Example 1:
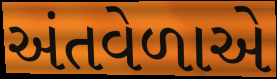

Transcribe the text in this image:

અંતવેળાએ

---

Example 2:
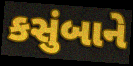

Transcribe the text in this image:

કસુંબાને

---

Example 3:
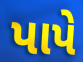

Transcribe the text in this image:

પાપે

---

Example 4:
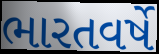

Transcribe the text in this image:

ભારતવર્ષે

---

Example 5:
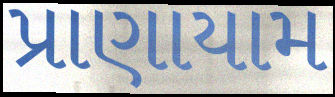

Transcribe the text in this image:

પ્રાણાયામ